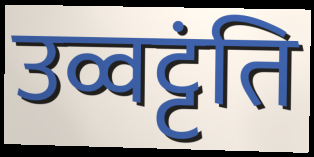
उव्वट्टंति